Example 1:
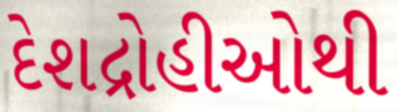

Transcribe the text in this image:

દેશદ્રોહીઓથી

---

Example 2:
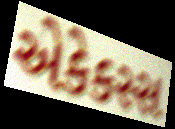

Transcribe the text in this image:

એકેકસ્સ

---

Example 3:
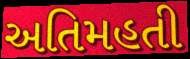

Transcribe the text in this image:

અતિમહતી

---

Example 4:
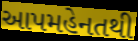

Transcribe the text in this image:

આપમહેનતથી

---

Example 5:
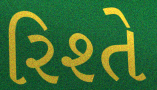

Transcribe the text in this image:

રિશ્તે